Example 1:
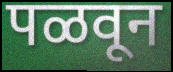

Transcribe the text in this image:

पळवून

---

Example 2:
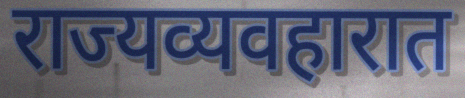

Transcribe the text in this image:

राज्यव्यवहारात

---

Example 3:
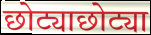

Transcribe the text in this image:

छोट्याछोट्या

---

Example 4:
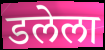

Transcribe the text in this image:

डलेला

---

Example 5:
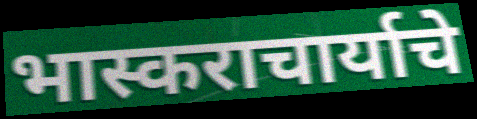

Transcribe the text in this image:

भास्कराचार्याचे